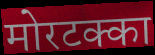
मोरटक्का